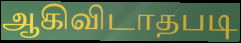
ஆகிவிடாதபடி